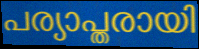
പര്യാപ്തരായി